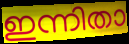
ഇന്നിതാ